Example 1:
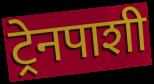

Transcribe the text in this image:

ट्रेनपाशी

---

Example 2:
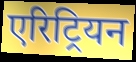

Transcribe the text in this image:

एरिट्रियन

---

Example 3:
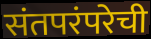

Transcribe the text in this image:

संतपरंपरेची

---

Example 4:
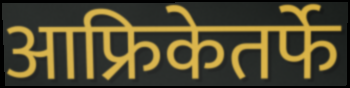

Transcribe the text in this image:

आफ्रिकेतर्फे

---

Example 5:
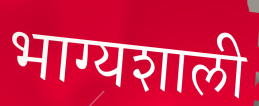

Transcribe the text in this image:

भाग्यशाली